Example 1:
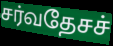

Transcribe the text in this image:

சர்வதேசச்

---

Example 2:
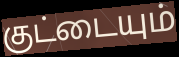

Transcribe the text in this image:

குட்டையும்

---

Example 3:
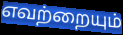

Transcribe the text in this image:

எவற்றையும்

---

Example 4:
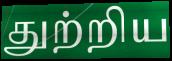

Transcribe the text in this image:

துற்றிய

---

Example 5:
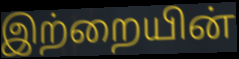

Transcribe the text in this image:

இற்றையின்